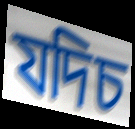
যদিচ